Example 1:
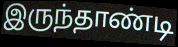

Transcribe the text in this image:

இருந்தாண்டி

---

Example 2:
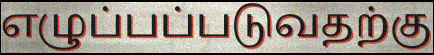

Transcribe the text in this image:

எழுப்பப்படுவதற்கு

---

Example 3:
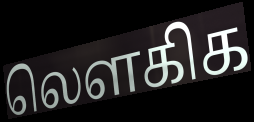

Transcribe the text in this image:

லௌகிக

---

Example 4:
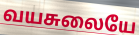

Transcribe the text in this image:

வயசுலையே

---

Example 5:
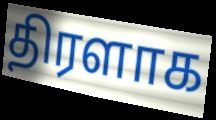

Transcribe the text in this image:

திரளாக